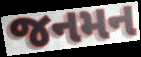
જનમન